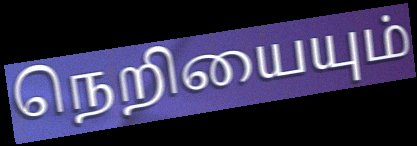
நெறியையும்